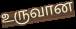
உருவான